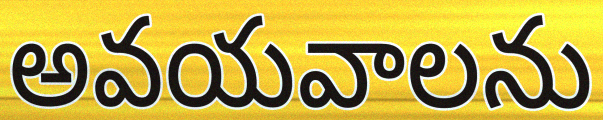
అవయవాలను